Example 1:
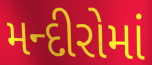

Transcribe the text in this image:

મન્દીરોમાં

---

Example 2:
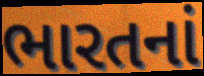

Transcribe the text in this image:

ભારતનાં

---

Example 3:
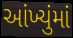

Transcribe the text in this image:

આંખ્યુંમાં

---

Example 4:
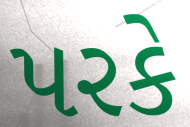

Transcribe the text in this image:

પરકે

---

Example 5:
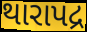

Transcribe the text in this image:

થારાપદ્ર